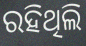
ରହିଥିଲି